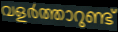
വളർത്താറുണ്ട്